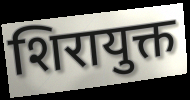
शिरायुक्त